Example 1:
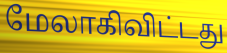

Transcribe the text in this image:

மேலாகிவிட்டது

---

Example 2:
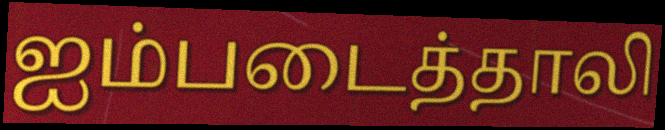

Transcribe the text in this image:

ஐம்படைத்தாலி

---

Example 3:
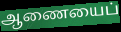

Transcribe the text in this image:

ஆணையைப்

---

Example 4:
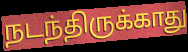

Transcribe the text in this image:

நடந்திருக்காது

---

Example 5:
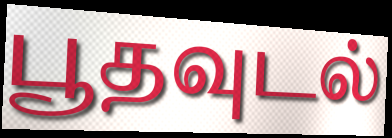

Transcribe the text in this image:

பூதவுடல்